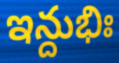
ఇన్దుభిః